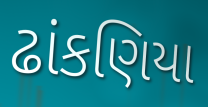
ઢાંકણિયા